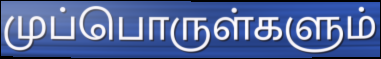
முப்பொருள்களும்